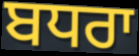
ਬਧਰਾ